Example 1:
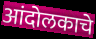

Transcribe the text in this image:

आंदोलकाचे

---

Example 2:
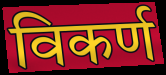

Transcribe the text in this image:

विकर्ण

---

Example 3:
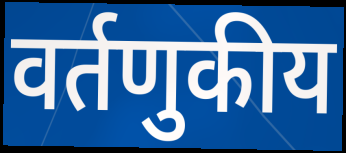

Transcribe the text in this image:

वर्तणुकीय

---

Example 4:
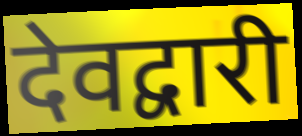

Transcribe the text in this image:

देवद्वारी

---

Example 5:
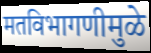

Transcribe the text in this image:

मतविभागणीमुळे